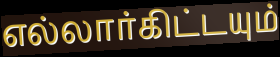
எல்லார்கிட்டயும்